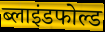
ब्लाइंडफोल्ड